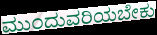
ಮುಂದುವರಿಯಬೇಕು